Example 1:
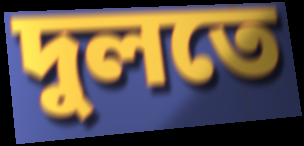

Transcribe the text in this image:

দুলতে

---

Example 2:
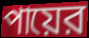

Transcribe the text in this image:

পায়ের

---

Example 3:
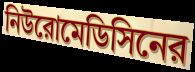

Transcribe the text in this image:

নিউরোমেডিসিনের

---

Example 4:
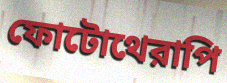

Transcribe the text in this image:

ফোটোথেরাপি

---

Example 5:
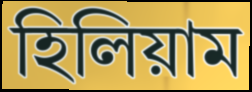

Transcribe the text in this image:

হিলিয়াম